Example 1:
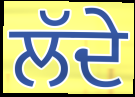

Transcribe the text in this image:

ਲੱਦੇ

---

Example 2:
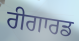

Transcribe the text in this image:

ਰੀਗਾਰਡ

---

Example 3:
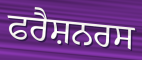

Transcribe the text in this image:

ਫਰੈਸ਼ਨਰਸ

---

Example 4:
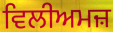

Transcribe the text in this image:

ਵਿਲੀਅਮਜ਼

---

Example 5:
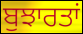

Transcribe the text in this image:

ਬੁਝਾਰਤਾਂ